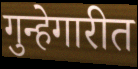
गुन्हेगारीत